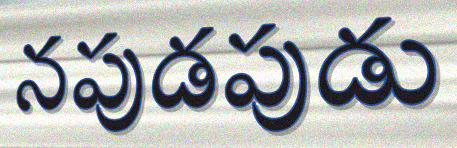
నపుడపుడు